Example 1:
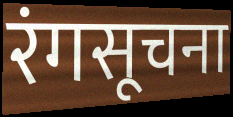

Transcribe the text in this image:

रंगसूचना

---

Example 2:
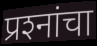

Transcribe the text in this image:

प्रश्‍नांचा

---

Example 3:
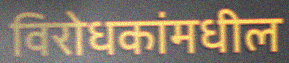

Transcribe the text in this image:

विरोधकांमधील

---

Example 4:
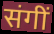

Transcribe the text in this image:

संगीं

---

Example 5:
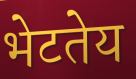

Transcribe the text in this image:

भेटतेय